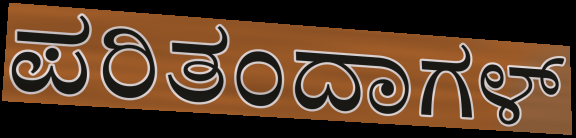
ಪರಿತಂದಾಗಳ್